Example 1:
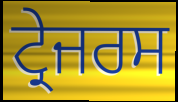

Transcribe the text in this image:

ਟ੍ਰੇਜਰਸ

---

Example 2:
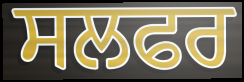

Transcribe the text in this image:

ਸਲਫਰ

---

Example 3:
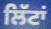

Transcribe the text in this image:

ਲਿੱਟਾਂ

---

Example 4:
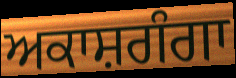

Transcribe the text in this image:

ਅਕਾਸ਼ਗੰਗਾ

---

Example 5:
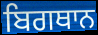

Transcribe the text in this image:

ਬਿਗਥਾਨ